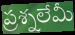
ప్రశ్నలేమీ